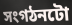
সংগঠনটো